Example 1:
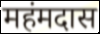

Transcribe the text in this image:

महंमदास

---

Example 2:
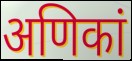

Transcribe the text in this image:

अणिकां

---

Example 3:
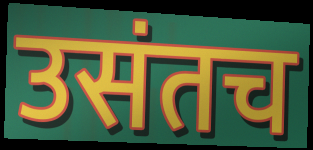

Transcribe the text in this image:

उसंतच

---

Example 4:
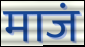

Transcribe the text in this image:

माजं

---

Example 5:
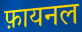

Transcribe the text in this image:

फ़ायनल